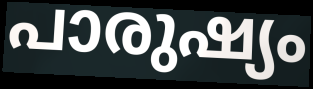
പാരുഷ്യം